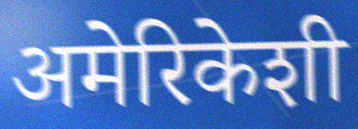
अमेरिकेशी